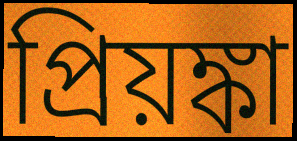
প্রিয়ঙ্কা